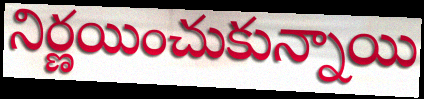
నిర్ణయించుకున్నాయి